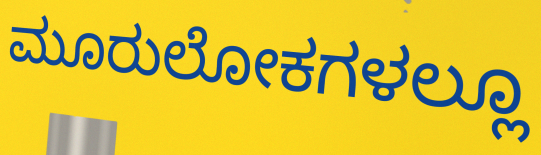
ಮೂರುಲೋಕಗಳಲ್ಲೂ